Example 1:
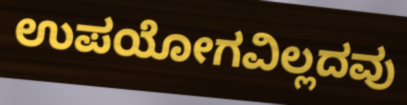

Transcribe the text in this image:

ಉಪಯೋಗವಿಲ್ಲದವು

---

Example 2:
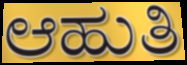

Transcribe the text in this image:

ಆಹುತಿ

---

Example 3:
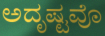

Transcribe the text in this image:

ಅದೃಷ್ಟವೊ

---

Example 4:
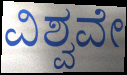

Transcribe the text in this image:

ವಿಶ್ವವೇ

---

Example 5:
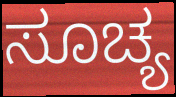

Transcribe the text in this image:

ಸೂಚ್ಯ